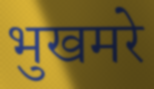
भुखमरे